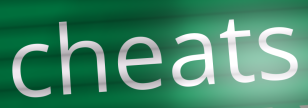
cheats